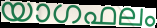
യാഗഫലം